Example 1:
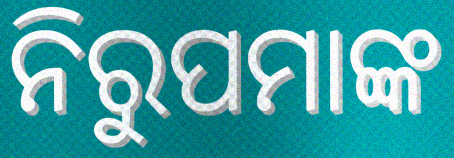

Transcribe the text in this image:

ନିରୁପମାଙ୍କ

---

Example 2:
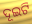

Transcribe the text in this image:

ଦୂଇଟି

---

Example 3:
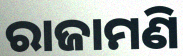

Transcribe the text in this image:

ରାଜାମଣି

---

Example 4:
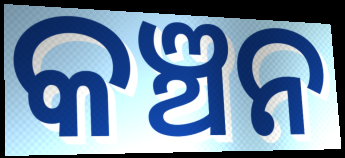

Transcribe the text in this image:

କଞ୍ଚନ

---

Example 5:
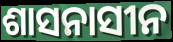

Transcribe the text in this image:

ଶାସନାସୀନ